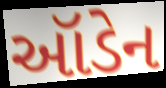
ઑડેન